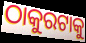
ଠାକୁରଟାକୁ